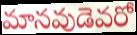
మానవుడెవరో